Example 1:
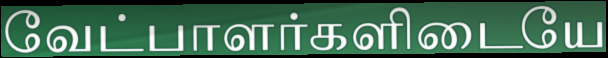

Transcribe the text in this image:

வேட்பாளர்களிடையே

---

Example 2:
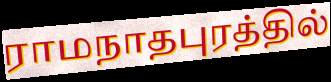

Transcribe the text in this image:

ராமநாதபுரத்தில்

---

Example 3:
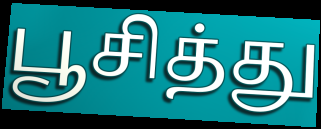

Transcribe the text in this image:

பூசித்து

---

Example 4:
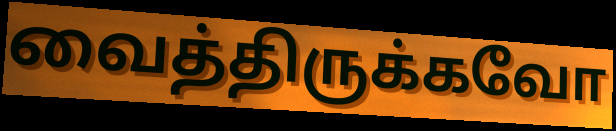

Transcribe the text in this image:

வைத்திருக்கவோ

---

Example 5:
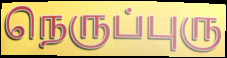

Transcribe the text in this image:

நெருப்புரு